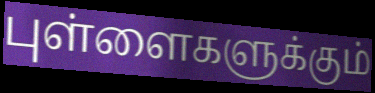
புள்ளைகளுக்கும்